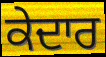
ਕੇਦਾਰ